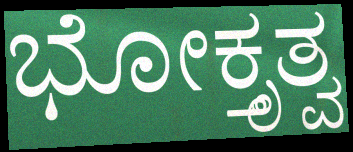
ಭೋಕ್ತೃತ್ವ